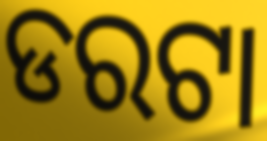
ଡରଟା